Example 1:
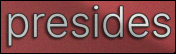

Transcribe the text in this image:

presides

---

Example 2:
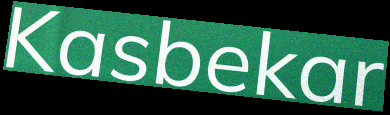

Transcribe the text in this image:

Kasbekar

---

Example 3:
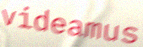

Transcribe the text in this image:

videamus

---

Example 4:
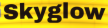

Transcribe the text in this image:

Skyglow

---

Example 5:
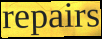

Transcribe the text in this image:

repairs